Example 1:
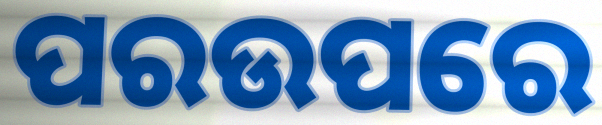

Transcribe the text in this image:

ପରଉପରେ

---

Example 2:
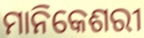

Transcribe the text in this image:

ମାନିକେଶରୀ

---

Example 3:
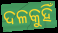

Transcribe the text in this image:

ଦଳକୁହିଁ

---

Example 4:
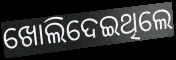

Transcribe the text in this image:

ଖୋଲିଦେଇଥିଲେ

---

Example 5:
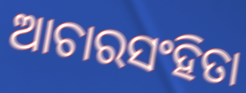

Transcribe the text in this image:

ଆଚାରସଂହିତା